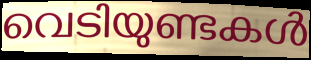
വെടിയുണ്ടകൾ